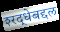
श्रद्धेबद्दल